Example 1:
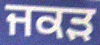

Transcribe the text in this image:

ਜਕਡ਼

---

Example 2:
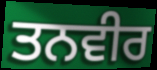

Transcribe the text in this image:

ਤਨਵੀਰ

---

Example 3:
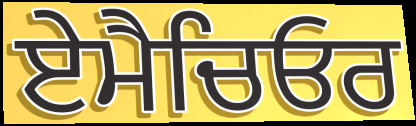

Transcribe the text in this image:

ਏਮੈਚਿਓਰ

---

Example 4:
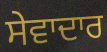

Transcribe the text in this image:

ਸੇਵਾਦਾਰ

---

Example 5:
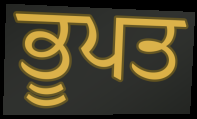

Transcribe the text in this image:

ਭੂਪਤ